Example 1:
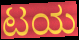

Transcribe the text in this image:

ಟಯ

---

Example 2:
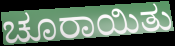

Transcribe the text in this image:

ಚೂರಾಯಿತು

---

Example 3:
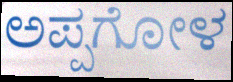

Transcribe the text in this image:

ಅಪ್ಪಗೋಳ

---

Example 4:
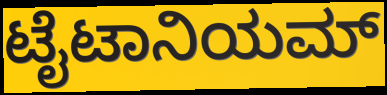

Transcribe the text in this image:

ಟೈಟಾನಿಯಮ್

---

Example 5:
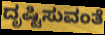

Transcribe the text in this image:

ದೃಷ್ಟಿಸುವಂತೆ